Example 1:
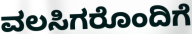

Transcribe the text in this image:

ವಲಸಿಗರೊಂದಿಗೆ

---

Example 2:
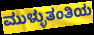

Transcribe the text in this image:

ಮುಳ್ಳುತಂತಿಯ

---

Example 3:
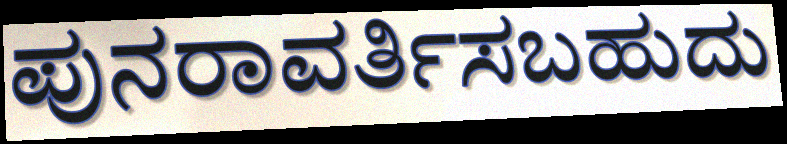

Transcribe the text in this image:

ಪುನರಾವರ್ತಿಸಬಹುದು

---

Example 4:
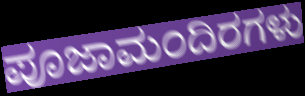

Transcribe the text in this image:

ಪೂಜಾಮಂದಿರಗಳು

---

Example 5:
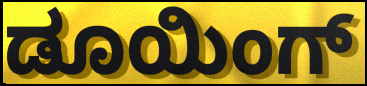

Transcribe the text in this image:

ಡೂಯಿಂಗ್